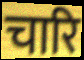
चारि